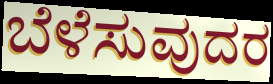
ಬೆಳೆಸುವುದರ